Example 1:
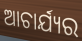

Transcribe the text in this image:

ଆଚାର୍ଯ୍ୟର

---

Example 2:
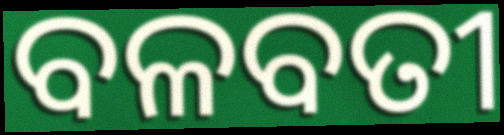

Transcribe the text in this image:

ବଳବତୀ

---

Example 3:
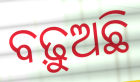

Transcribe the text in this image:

ବଢ଼ୁଅଛି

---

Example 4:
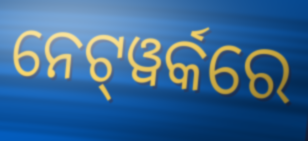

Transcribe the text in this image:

ନେଟ୍‍ୱର୍କରେ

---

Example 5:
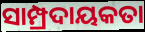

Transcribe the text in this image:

ସାମ୍ପ୍ରଦାୟକତା